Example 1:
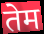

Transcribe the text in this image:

तेम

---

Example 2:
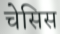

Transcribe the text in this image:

चेसिस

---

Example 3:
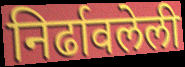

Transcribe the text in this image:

निर्ढावलेली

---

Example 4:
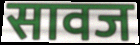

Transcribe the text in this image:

सावज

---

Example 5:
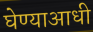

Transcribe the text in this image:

घेण्याआधी